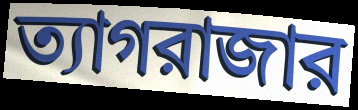
ত্যাগরাজার